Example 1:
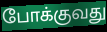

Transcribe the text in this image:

போக்குவது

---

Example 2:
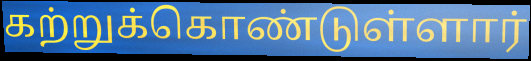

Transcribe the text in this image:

கற்றுக்கொண்டுள்ளார்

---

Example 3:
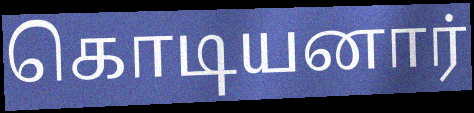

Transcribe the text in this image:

கொடியனார்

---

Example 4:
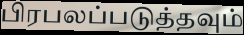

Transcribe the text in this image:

பிரபலப்படுத்தவும்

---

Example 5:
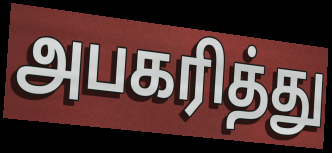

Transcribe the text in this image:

அபகரித்து